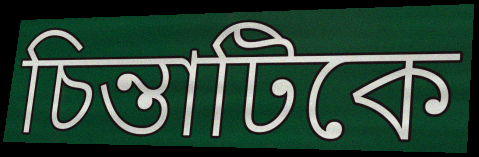
চিন্তাটিকে